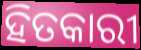
ହିତକାରୀ